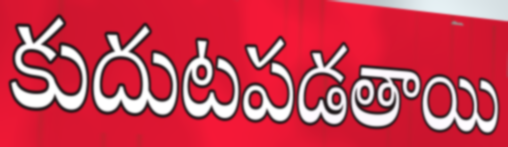
కుదుటపడతాయి